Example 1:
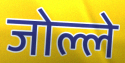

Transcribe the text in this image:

जोल्ले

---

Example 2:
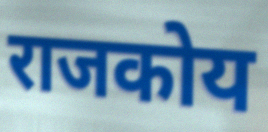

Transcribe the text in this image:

राजकोय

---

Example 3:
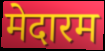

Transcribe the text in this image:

मेदारम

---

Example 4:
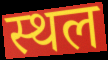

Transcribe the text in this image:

स्थल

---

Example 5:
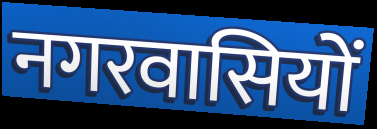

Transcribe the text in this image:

नगरवासियों